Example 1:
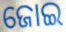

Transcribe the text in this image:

ଜୋଇ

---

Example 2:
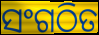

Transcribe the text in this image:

ସଂଗଠିତ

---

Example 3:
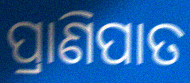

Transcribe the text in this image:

ପ୍ରାଣିପାତ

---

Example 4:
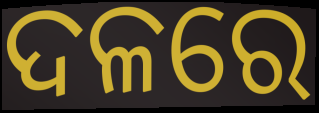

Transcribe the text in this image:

ଦଳରେ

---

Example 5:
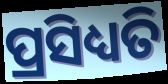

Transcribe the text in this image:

ପ୍ରସିଧ୍ୟତି